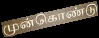
முன்கொண்டு